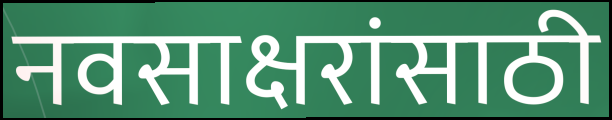
नवसाक्षरांसाठी